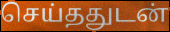
செய்ததுடன்